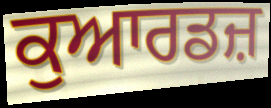
ਕੁਆਰਡਜ਼